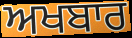
ਅਖਬਾਰ